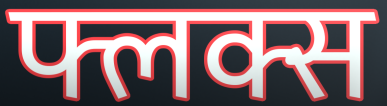
फ्लक्स